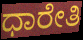
ಧಾರೇತಿ